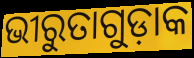
ଭୀରୁତାଗୁଡ଼ାକ